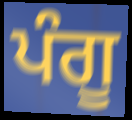
ਪੰਗੂ